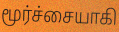
மூர்ச்சையாகி